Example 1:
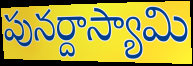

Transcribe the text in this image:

పునర్దాస్యామి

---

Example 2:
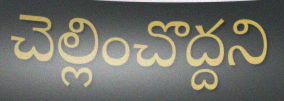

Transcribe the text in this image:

చెల్లించొద్దని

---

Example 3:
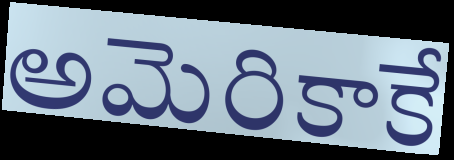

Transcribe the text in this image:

అమెరికాకే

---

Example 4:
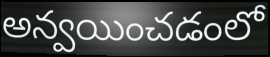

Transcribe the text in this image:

అన్వయించడంలో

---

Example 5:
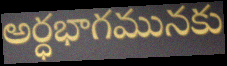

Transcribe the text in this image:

అర్ధభాగమునకు